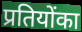
प्रतियोंका